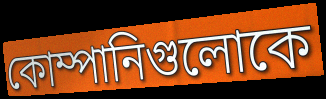
কোম্পানিগুলোকে